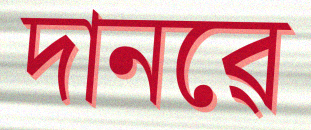
দানৱে